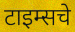
टाइम्सचे